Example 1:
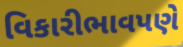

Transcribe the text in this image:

વિકારીભાવપણે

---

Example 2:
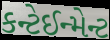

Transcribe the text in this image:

કન્ટેઈન્મેન્ટ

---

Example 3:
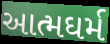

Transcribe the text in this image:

આત્મઘર્મ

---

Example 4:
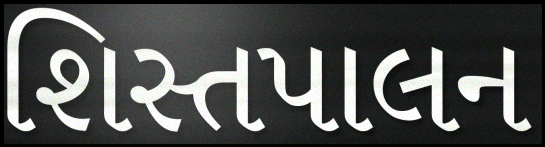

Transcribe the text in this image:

શિસ્તપાલન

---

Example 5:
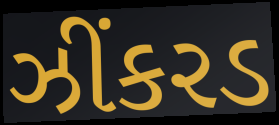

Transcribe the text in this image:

ઝીંકરડ